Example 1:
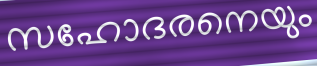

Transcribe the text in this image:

സഹോദരനെയും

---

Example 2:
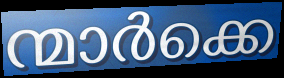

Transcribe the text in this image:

ന്മാർക്കെ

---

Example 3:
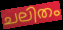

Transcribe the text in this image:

ചലിതം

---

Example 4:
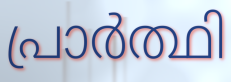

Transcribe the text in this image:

പ്രാർത്ഥി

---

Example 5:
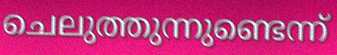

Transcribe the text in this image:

ചെലുത്തുന്നുണ്ടെന്ന്